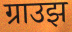
ग्राउझ